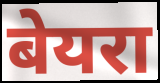
बेयरा